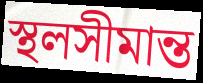
স্থলসীমান্ত